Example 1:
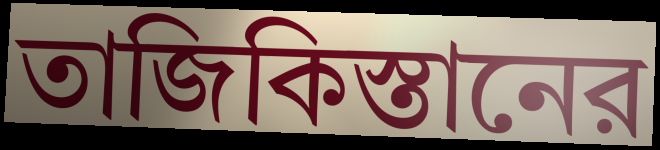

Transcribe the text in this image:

তাজিকিস্তানের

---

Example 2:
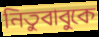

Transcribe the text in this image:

নিতুবাবুকে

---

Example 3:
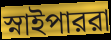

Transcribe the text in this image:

স্নাইপাররা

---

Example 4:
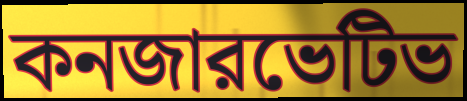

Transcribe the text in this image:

কনজারভেটিভ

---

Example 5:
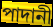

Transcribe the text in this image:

পাদানী